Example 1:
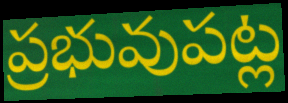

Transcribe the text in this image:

ప్రభువుపట్ల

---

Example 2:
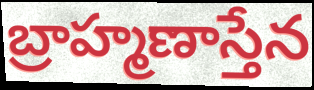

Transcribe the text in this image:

బ్రాహ్మణాస్తేన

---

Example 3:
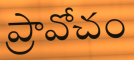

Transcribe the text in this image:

ప్రావోచం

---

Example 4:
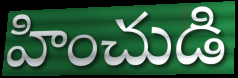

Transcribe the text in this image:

హించుడి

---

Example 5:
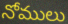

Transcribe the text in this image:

నోములు